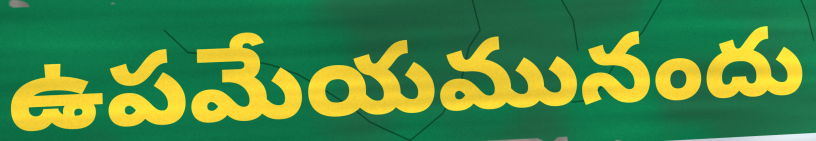
ఉపమేయమునందు